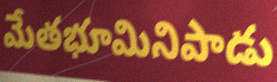
మేతభూమినిపాడు